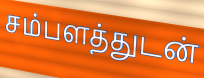
சம்பளத்துடன்